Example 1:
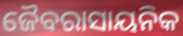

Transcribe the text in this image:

ଜୈବରାସାୟନିକ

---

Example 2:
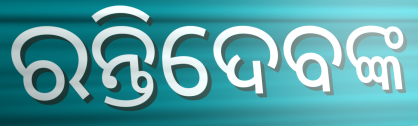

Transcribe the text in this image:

ରନ୍ତିଦେବଙ୍କ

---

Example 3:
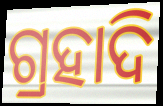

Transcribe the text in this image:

ଗ୍ରହାଦି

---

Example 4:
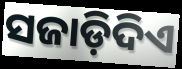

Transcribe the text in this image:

ସଜାଡ଼ିଦିଏ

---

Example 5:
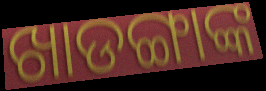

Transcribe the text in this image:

ଖାଡଙ୍ଗାଙ୍କ